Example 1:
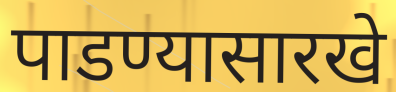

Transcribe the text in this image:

पाडण्यासारखे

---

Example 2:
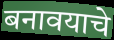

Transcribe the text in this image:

बनावयाचे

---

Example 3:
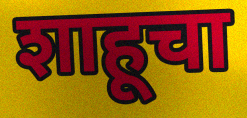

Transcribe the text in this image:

शाहूचा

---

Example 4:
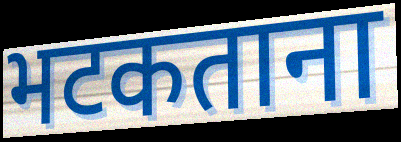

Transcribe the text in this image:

भटकताना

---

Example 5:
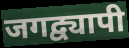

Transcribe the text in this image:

जगद्व्यापी